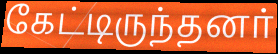
கேட்டிருந்தனர்